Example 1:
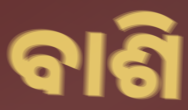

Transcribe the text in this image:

ବାଶି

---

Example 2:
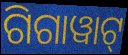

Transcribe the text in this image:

ଗିଗାୱାଟ୍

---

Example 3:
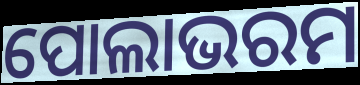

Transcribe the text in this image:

ପୋଲାଭରମ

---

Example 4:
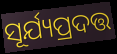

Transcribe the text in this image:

ସୂର୍ଯ୍ୟପ୍ରଦତ୍ତ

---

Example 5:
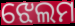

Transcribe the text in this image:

ଝେଲମ